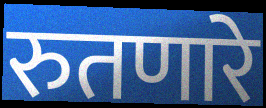
रुतणारे